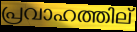
പ്രവാഹത്തില്